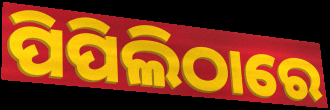
ପିପିଲିଠାରେ